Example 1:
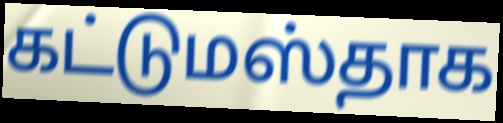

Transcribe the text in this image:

கட்டுமஸ்தாக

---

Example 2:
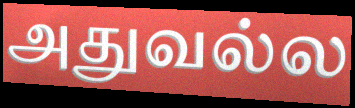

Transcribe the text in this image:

அதுவல்ல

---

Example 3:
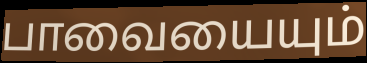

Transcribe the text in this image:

பாவையையும்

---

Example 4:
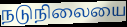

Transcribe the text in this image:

நடுநிலையை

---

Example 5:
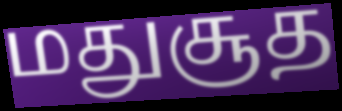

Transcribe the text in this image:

மதுசூத